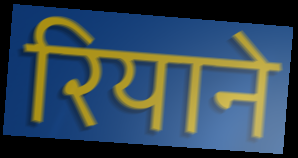
रियाने